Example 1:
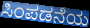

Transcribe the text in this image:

ಸಿಂಪಡನೆಯ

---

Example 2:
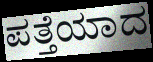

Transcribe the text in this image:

ಪತ್ತೆಯಾದ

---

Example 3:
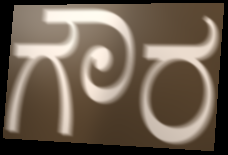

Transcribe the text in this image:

ಗೌರ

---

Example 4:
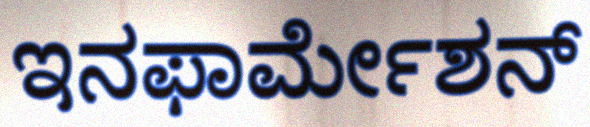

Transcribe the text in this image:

ಇನಫಾರ್ಮೇಶನ್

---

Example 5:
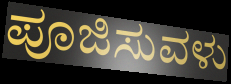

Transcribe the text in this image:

ಪೂಜಿಸುವಳು